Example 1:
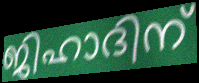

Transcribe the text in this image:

ജിഹാദിന്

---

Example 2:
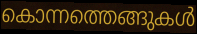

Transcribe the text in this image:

കൊന്നത്തെങ്ങുകൾ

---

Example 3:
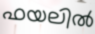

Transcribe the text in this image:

ഫയലിൽ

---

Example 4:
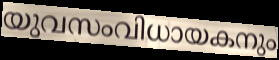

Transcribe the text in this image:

യുവസംവിധായകനും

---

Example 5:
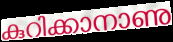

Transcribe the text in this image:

കുറിക്കാനാണു